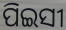
ପିଇସୀ